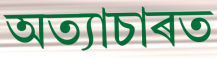
অত্যাচাৰত